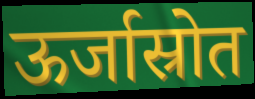
ऊर्जास्रोत